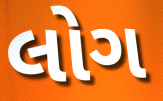
લોગ